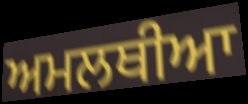
ਅਮਲਥੀਆ